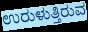
ಉರುಳುತ್ತಿರುವ